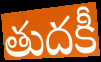
తుదకీ